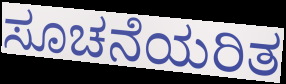
ಸೂಚನೆಯರಿತ